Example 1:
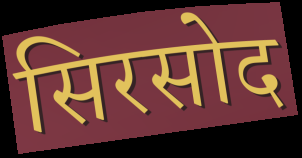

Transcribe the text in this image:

सिरसोद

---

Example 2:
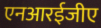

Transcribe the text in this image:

एनआरईजीए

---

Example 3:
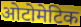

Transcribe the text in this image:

ओटोमेटिक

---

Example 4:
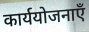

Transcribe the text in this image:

कार्ययोजनाएँ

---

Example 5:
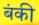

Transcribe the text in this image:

बंकी